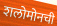
शलोमोनची